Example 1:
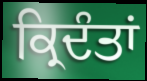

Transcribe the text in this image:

ਕ੍ਰਿਦੰਤਾਂ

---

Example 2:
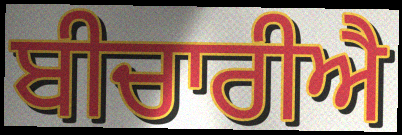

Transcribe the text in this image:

ਬੀਚਾਰੀਐ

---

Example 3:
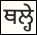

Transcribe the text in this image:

ਥਲ੍ਹੇ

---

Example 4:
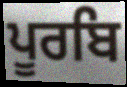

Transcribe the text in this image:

ਪੂਰਬਿ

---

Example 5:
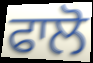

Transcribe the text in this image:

ਫਾਲੋ